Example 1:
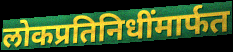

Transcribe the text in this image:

लोकप्रतिनिधींमार्फत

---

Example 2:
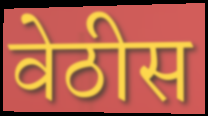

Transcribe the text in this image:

वेठीस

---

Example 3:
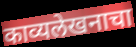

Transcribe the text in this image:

काव्यलेखनाचा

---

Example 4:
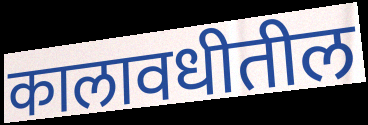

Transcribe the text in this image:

कालावधीतील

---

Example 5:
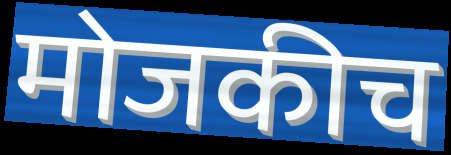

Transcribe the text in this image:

मोजकीच